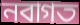
নবাগত